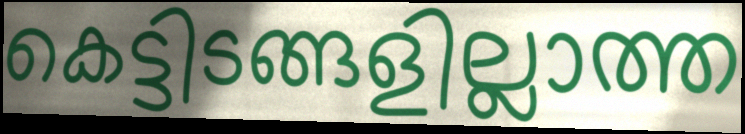
കെട്ടിടങ്ങളില്ലാത്ത